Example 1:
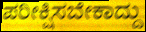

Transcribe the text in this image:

ಪರೀಕ್ಷಿಸಬೇಕಾದ್ದು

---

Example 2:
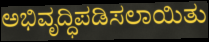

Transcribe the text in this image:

ಅಭಿವೃದ್ಧಿಪಡಿಸಲಾಯಿತು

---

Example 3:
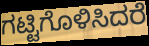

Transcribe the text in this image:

ಗಟ್ಟಿಗೊಳಿಸಿದರೆ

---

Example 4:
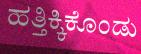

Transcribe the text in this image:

ಹತ್ತಿಕ್ಕಿಕೊಂಡು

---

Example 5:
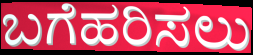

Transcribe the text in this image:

ಬಗೆಹರಿಸಲು